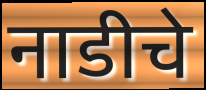
नाडीचे